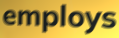
employs